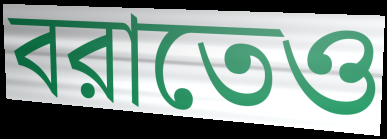
বরাতেও